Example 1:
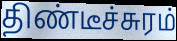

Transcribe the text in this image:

திண்டீச்சுரம்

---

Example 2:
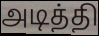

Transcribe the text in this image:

அடித்தி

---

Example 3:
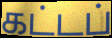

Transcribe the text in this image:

கட்டப்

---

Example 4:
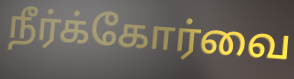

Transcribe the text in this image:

நீர்க்கோர்வை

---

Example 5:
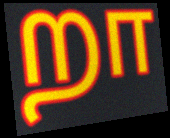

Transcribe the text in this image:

றா